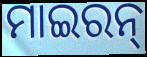
ମାଇରନ୍